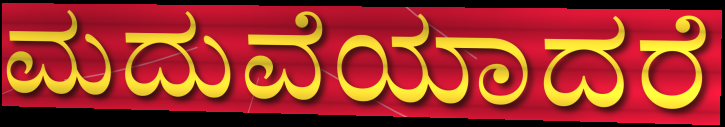
ಮದುವೆಯಾದರೆ